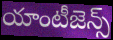
యాంటీజెన్స్